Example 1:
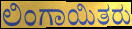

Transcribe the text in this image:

ಲಿಂಗಾಯಿತರು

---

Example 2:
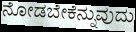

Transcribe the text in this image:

ನೋಡಬೇಕೆನ್ನುವುದು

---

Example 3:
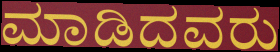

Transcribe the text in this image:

ಮಾಡಿದವರು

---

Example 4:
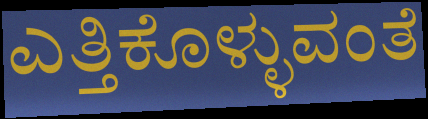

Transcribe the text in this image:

ಎತ್ತಿಕೊಳ್ಳುವಂತೆ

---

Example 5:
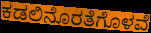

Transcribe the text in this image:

ಕಡಲಿನೊರತೆಗೊಳವೆ